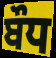
ਬੌਧ